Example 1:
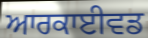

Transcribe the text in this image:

ਆਰਕਾਈਵਡ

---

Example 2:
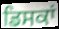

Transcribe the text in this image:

ਡਿਸਕਾਂ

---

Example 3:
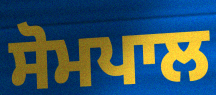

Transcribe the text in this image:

ਸੋਮਪਾਲ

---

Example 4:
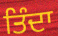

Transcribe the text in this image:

ਤਿੰਦਾ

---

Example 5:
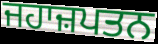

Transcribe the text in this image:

ਜਹਾਜ਼ਪਤਨ